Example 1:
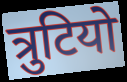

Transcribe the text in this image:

त्रुटियो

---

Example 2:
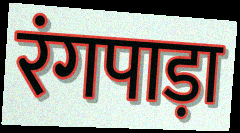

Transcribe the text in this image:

रंगपाड़ा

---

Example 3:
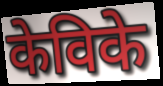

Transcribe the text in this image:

केविके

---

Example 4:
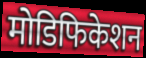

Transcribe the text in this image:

मोडिफिकेशन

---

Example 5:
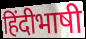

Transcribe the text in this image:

हिंदीभाषी